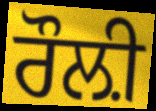
ਰੌਲ਼ੀ